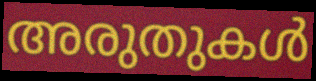
അരുതുകൾ